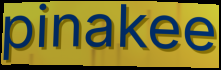
pinakee